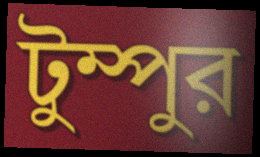
টুম্পুর